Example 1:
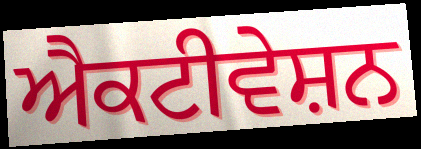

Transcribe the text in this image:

ਐਕਟੀਵੇਸ਼ਨ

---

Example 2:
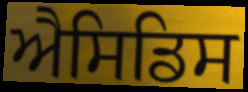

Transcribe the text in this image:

ਐਸਿਡਿਸ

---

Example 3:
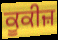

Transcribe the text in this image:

ਕੂਕੀਜ਼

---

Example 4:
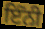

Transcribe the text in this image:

ਇੰਂਨੀ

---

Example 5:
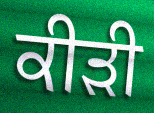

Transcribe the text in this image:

ਕੀੜੀ